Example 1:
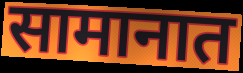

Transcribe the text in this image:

सामानात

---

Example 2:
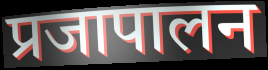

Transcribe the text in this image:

प्रजापालन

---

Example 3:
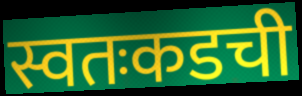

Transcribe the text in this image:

स्वतःकडची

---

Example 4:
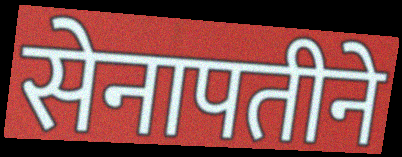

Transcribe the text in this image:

सेनापतीने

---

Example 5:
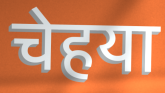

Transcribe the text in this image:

चेहया